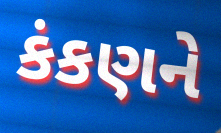
કંકણને